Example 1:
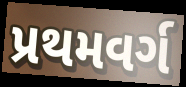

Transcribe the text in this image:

પ્રથમવર્ગ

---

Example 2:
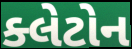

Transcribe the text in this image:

ક્લેટોન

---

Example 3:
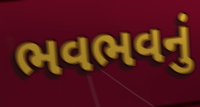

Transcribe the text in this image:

ભવભવનું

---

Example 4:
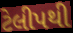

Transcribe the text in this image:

ટેલીપથી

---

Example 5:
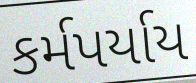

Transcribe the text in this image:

કર્મપર્યાય